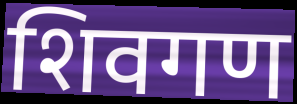
शिवगण